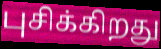
புசிக்கிறது